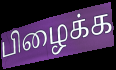
பிழைக்க